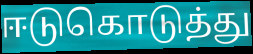
ஈடுகொடுத்து